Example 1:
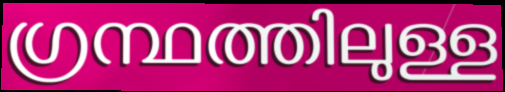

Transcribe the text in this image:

ഗ്രന്ഥത്തിലുള്ള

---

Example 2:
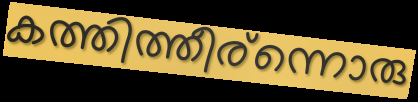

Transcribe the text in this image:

കത്തിത്തീര്ന്നൊരു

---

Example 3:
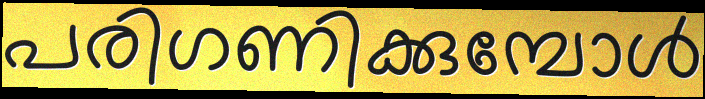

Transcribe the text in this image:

പരിഗണിക്കുമ്പോൾ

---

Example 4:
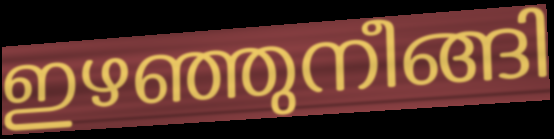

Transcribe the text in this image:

ഇഴഞ്ഞുനീങ്ങി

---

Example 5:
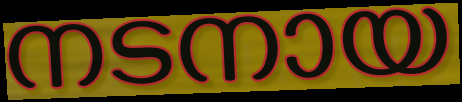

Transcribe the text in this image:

നടനായ